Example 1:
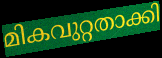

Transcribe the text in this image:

മികവുറ്റതാക്കി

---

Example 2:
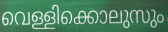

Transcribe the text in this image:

വെള്ളിക്കൊലുസും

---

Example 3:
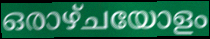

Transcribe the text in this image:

ഒരാഴ്ചയോളം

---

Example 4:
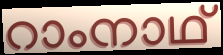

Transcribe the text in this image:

റാംനാഥ്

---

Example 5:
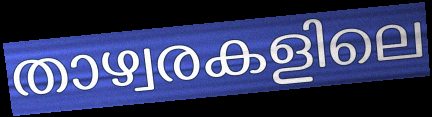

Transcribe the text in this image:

താഴ്വരകളിലെ